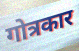
गोत्रकार